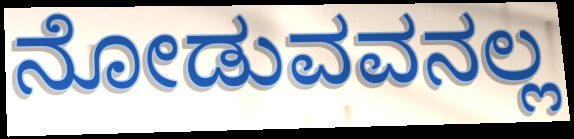
ನೋಡುವವನಲ್ಲ